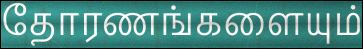
தோரணங்களையும்